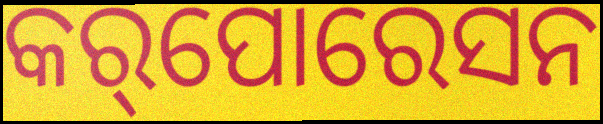
କର୍‌ପୋରେସନ